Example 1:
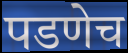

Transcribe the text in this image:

पडणेच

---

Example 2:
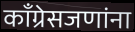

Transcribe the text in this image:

काँग्रेसजणांना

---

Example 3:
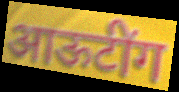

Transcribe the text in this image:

आऊटींग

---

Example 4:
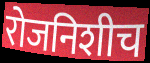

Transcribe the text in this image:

रोजनिशीच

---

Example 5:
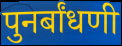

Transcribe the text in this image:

पुनर्बांधणी